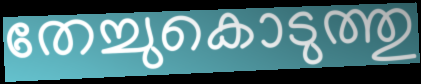
തേച്ചുകൊടുത്തു